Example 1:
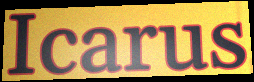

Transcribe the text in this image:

Icarus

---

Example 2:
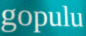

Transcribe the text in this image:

gopulu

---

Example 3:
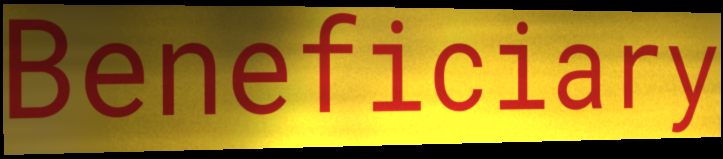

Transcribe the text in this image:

Beneficiary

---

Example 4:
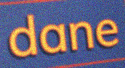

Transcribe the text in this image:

dane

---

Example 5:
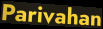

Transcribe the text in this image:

Parivahan